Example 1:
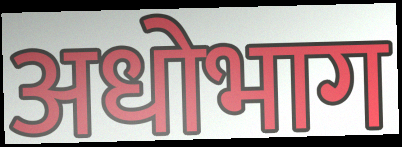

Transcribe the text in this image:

अधोभाग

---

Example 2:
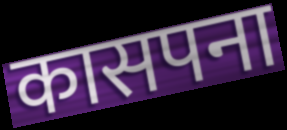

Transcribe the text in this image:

कासपना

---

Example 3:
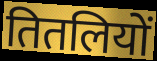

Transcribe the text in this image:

तितलियों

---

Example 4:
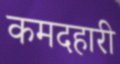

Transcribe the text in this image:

कमदहारी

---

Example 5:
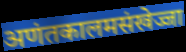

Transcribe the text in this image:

अणंतकालमसंखेज्जा